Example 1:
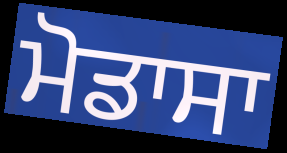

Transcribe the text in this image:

ਮੋਡਾਸਾ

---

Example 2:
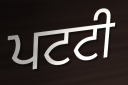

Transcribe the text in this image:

ਪਟਟੀ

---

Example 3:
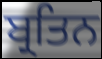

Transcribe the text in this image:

ਬ੍ਰਤਿਨ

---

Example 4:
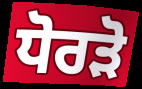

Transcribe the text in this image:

ਧੋਰੜੋ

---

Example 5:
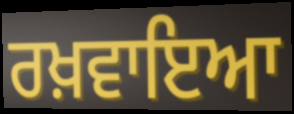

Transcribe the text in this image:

ਰਖ਼ਵਾਇਆ